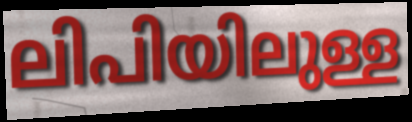
ലിപിയിലുള്ള